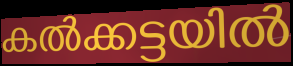
കൽക്കട്ടയിൽ